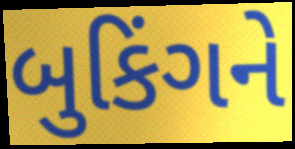
બુકિંગને